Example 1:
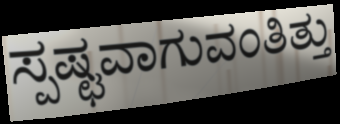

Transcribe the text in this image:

ಸ್ಪಷ್ಟವಾಗುವಂತಿತ್ತು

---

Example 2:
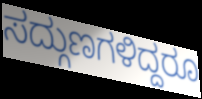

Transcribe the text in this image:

ಸದ್ಗುಣಗಳಿದ್ದರೂ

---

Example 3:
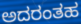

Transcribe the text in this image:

ಅದರಂತಹ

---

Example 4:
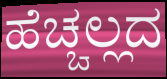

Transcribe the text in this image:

ಹೆಚ್ಚಲ್ಲದ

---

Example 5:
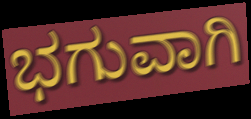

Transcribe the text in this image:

ಭಗುವಾಗಿ